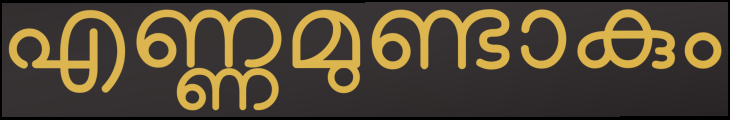
എണ്ണമുണ്ടാകും